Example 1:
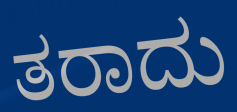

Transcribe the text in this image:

ತರಾದು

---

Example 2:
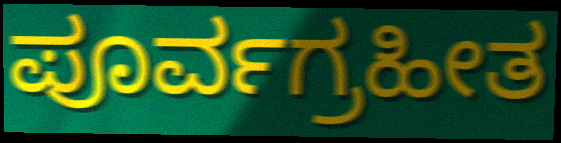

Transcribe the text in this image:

ಪೂರ್ವಗ್ರಹೀತ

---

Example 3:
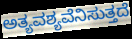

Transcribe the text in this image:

ಅತ್ಯವಶ್ಯವೆನಿಸುತ್ತದೆ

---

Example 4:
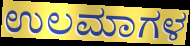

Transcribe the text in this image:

ಉಲಮಾಗಳ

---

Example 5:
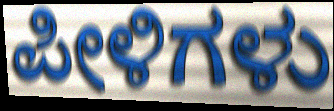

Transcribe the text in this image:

ಪೀಳಿಗಳು